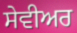
ਸੇਵੀਅਰ